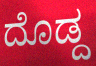
ದೊಡ್ದ